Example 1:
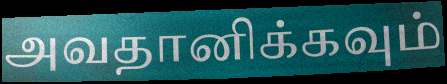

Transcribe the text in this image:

அவதானிக்கவும்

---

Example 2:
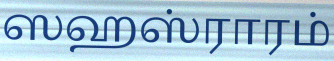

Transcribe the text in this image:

ஸஹஸ்ராரம்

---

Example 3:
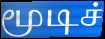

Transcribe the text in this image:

மூடிச்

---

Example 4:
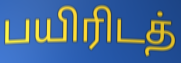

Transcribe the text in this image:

பயிரிடத்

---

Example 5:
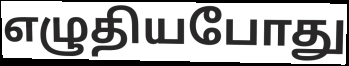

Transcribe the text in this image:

எழுதியபோது